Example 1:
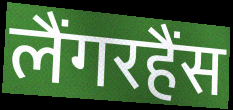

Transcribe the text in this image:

लैंगरहैंस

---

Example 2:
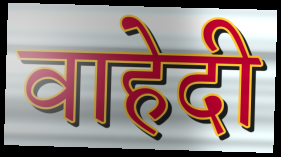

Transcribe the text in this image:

वाहेदी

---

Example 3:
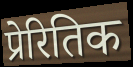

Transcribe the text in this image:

प्रेरितिक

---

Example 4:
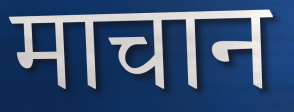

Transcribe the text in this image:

माचान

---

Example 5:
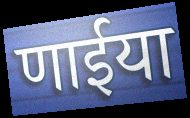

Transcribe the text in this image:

णाईया